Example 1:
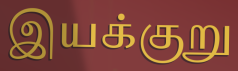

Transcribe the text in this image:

இயக்குறு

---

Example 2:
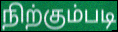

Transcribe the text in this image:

நிற்கும்படி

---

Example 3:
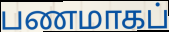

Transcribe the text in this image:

பணமாகப்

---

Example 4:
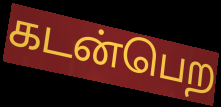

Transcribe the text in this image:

கடன்பெற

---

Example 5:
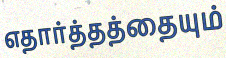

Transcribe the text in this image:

எதார்த்தத்தையும்